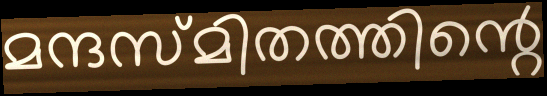
മന്ദസ്മിതത്തിന്റെ